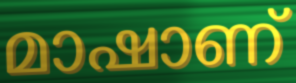
മാഷാണ്